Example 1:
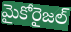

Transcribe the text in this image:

మైకోరైజల్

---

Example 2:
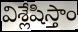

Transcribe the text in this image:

విశ్లేషిస్తాం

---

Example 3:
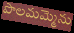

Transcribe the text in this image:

పొలమమ్మెను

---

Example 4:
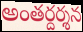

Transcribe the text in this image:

అంతర్దర్శన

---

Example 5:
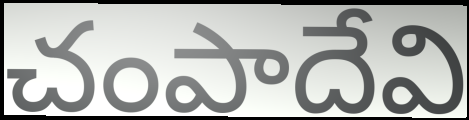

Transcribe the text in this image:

చంపాదేవి